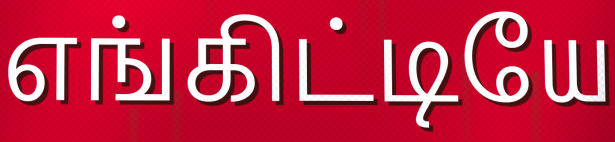
எங்கிட்டியே